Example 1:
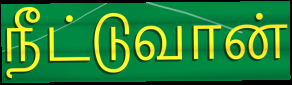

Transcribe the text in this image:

நீட்டுவான்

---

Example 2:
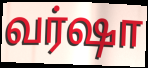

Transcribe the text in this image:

வர்ஷா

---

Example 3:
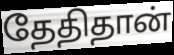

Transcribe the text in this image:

தேதிதான்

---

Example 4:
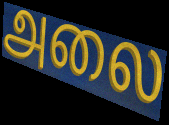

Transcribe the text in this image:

அலை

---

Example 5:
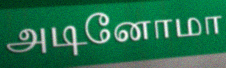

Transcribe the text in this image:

அடினோமா